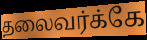
தலைவர்க்கே